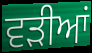
ਵੜੀਆਂ